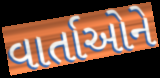
વાર્તાઓને